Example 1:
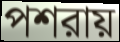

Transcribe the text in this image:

পশরায়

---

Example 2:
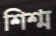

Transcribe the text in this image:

শিশ্ম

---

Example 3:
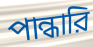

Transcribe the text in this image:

পান্ধারি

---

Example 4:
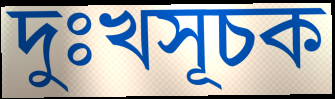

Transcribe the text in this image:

দুঃখসূচক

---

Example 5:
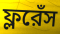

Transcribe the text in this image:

ফ্লরেঁস